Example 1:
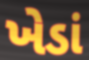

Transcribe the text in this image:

ખેડાં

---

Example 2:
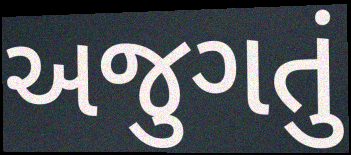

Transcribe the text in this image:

અજુગતું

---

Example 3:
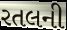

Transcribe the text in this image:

રતલની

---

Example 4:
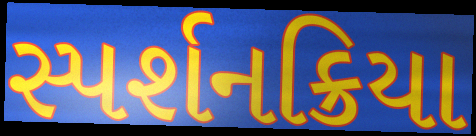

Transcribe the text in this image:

સ્પર્શનક્રિયા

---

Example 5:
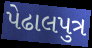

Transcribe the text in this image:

પેઢાલપુત્ર